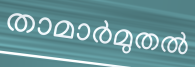
താമാർമുതൽ